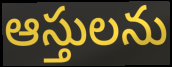
ఆస్తులను